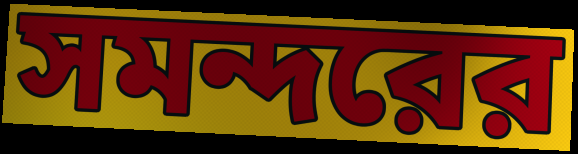
সমন্দরের